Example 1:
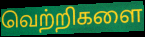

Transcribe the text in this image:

வெற்றிகளை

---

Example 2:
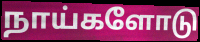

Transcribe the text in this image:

நாய்களோடு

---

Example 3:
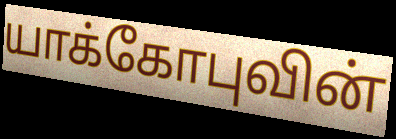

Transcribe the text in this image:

யாக்கோபுவின்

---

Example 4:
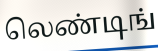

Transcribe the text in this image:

லெண்டிங்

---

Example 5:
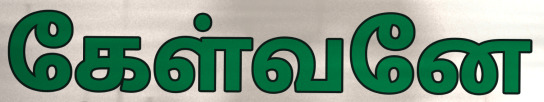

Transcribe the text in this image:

கேள்வனே